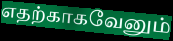
எதற்காகவேனும்